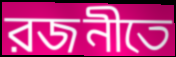
রজনীতে